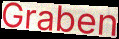
Graben